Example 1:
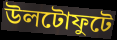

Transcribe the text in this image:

উলটোফুটে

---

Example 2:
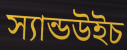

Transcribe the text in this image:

স্যান্ডউইচ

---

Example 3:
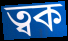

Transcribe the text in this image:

ত্বক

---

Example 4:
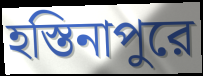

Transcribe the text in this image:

হস্তিনাপুরে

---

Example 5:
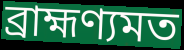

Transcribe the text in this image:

ব্রাহ্মণ্যমত